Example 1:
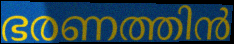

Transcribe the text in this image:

ഭരണത്തിൻ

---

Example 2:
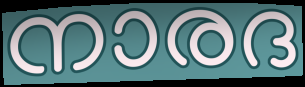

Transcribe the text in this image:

നാരദ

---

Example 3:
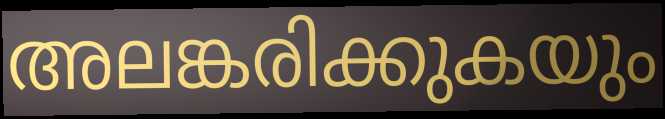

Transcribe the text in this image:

അലങ്കരിക്കുകയും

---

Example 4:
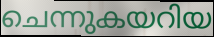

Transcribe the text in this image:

ചെന്നുകയറിയ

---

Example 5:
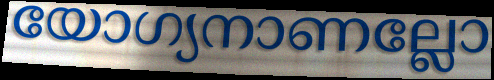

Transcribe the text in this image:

യോഗ്യനാണല്ലോ